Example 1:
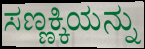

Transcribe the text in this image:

ಸಣ್ಣಕ್ಕಿಯನ್ನು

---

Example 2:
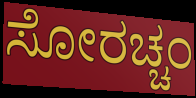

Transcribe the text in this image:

ಸೋರಚ್ಚಂ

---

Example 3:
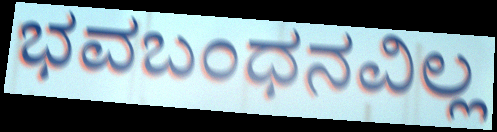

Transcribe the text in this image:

ಭವಬಂಧನವಿಲ್ಲ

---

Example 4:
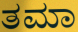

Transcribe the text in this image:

ತಮಾ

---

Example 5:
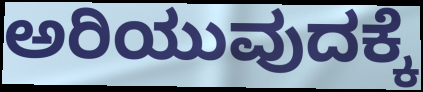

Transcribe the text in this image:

ಅರಿಯುವುದಕ್ಕೆ